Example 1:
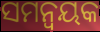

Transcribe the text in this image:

ସମନ୍ୱୟକ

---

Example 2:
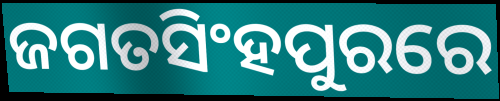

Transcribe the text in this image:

ଜଗତସିଂହପୁରରେ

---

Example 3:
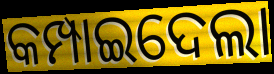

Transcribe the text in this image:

କମ୍ପାଇଦେଲା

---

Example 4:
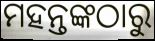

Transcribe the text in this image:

ମହନ୍ତଙ୍କଠାରୁ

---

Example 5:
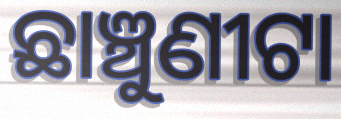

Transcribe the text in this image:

ଛାଞ୍ଚୁଣୀଟା